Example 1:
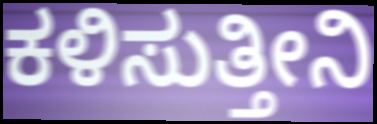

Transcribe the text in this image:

ಕಳಿಸುತ್ತೀನಿ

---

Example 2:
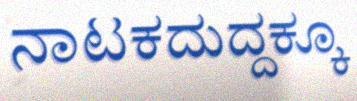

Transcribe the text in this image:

ನಾಟಕದುದ್ದಕ್ಕೂ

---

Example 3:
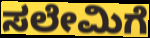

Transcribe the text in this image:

ಸಲೇಮಿಗೆ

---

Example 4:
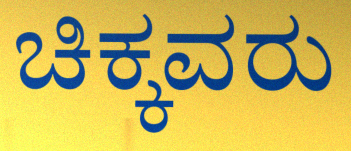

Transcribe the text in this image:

ಚಿಕ್ಕವರು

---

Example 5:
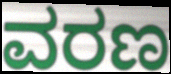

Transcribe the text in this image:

ವರಣ